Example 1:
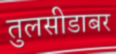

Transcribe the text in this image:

तुलसीडाबर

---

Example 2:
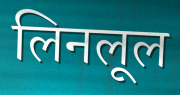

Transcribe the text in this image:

लिनलूल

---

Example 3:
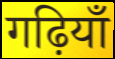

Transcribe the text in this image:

गढ़ियाँ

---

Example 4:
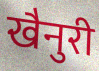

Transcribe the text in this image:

खैनुरी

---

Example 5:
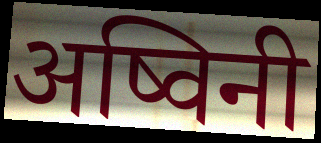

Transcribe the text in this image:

अष्विनी